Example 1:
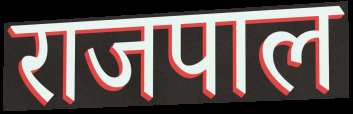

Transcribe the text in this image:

राजपाल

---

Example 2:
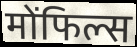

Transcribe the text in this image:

मोंफिल्स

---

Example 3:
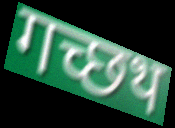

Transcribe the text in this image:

गच्छथ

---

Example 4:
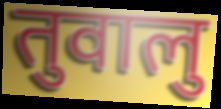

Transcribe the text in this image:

तुवालु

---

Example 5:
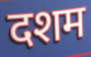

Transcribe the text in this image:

दशम